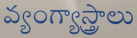
వ్యంగ్యాస్త్రాలు